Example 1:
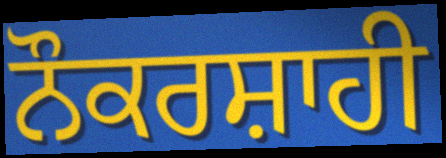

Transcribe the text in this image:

ਨੌਕਰਸ਼ਾਹੀ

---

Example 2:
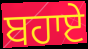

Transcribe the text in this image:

ਬਹਾਏ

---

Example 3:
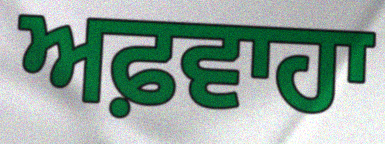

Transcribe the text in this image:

ਅਫ਼ਵਾਹਾ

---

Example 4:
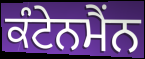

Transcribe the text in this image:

ਕੰਟੇਨਮੈਂਨ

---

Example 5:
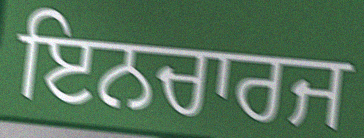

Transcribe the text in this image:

ਇਨਚਾਰਜ